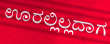
ಊರಲ್ಲಿಲ್ಲದಾಗ